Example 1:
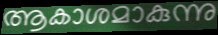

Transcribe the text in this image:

ആകാശമാകുന്നു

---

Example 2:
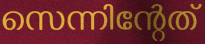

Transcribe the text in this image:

സെന്നിന്റേത്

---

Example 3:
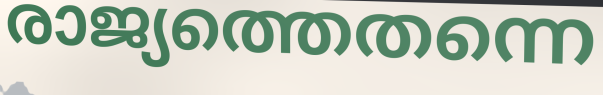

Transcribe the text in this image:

രാജ്യത്തെതന്നെ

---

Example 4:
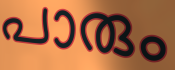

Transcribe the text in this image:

പാരും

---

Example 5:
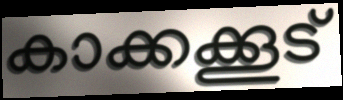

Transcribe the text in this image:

കാക്കക്കൂട്